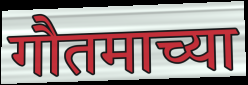
गौतमाच्या